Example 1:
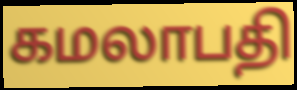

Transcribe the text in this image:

கமலாபதி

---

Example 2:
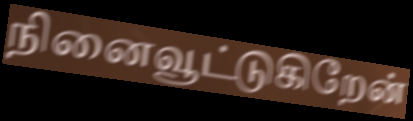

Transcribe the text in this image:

நினைவூட்டுகிறேன்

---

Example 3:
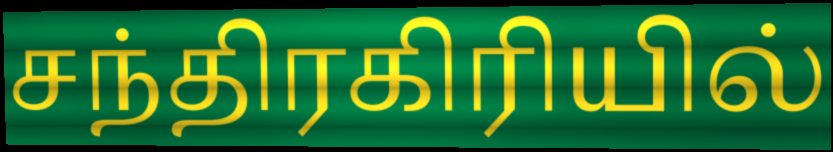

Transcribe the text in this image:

சந்திரகிரியில்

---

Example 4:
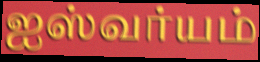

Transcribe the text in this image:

ஐஸ்வர்யம்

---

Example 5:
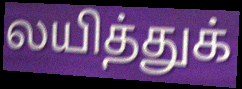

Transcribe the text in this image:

லயித்துக்